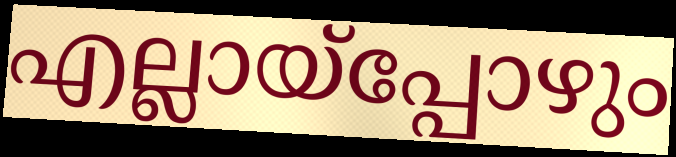
എല്ലായ്പ്പോഴും